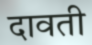
दावती